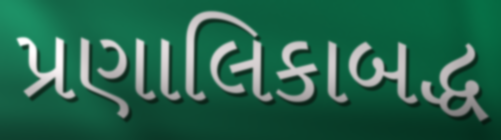
પ્રણાલિકાબદ્ધ